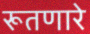
रूतणारे